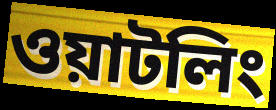
ওয়াটলিং